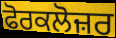
ਫੋਰਕਲੋਜ਼ਰ